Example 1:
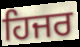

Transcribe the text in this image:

ਹਿਜਰ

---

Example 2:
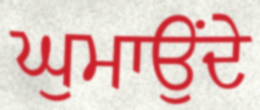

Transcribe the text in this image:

ਘੁਮਾਉਂਦੇ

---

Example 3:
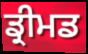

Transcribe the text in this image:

ਡ੍ਰੀਮਡ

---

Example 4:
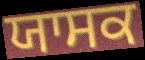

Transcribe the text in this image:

ਯਾਸਕ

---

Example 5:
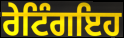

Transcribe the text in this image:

ਰੇਟਿੰਗਇਹ